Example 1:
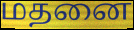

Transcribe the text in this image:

மதனை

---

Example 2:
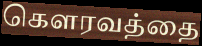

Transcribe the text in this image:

கௌரவத்தை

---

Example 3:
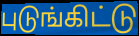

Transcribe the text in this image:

புடுங்கிட்டு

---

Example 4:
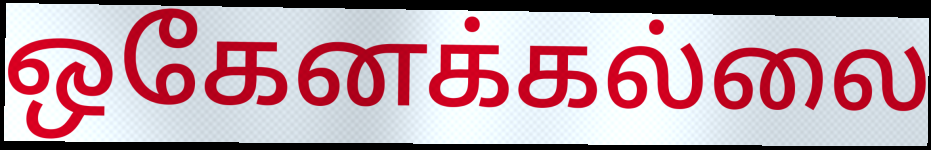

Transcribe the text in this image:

ஒகேனக்கல்லை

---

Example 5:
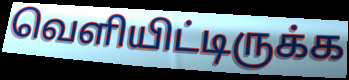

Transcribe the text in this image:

வெளியிட்டிருக்க